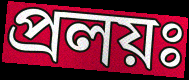
প্রলয়ঃ